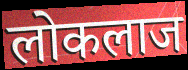
लोकलाज